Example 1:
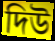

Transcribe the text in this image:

দিউ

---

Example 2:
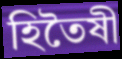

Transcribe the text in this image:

হিতৈষী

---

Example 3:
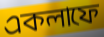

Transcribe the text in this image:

একলাফে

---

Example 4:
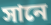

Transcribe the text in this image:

সানে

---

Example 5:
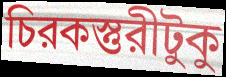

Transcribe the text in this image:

চিরকস্তুরীটুকু